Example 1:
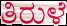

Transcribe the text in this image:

ತಿರುಳೆ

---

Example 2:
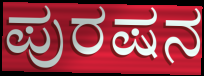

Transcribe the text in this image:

ಪುರಷನ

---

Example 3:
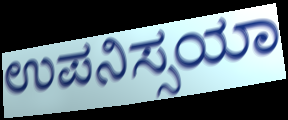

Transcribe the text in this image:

ಉಪನಿಸ್ಸಯಾ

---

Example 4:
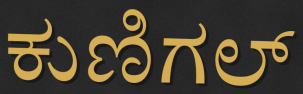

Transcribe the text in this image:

ಕುಣಿಗಲ್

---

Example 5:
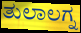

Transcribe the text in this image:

ತುಲಾಲಗ್ನ